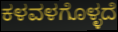
ಕಳವಳಗೊಳ್ಳದೆ